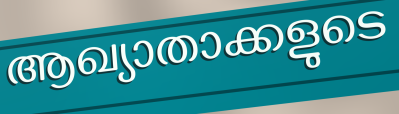
ആഖ്യാതാക്കളുടെ